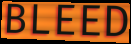
BLEED